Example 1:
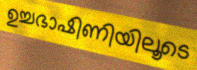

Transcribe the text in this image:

ഉച്ചഭാഷിണിയിലൂടെ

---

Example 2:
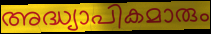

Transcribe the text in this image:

അദ്ധ്യാപികമാരും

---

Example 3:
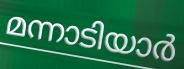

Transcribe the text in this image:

മന്നാടിയാർ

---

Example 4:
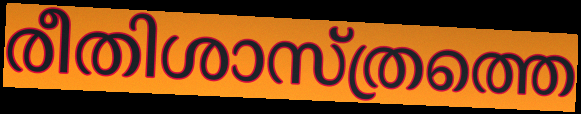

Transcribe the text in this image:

രീതിശാസ്ത്രത്തെ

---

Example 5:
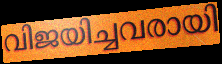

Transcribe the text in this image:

വിജയിച്ചവരായി